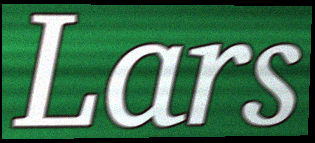
Lars